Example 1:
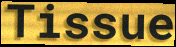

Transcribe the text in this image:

Tissue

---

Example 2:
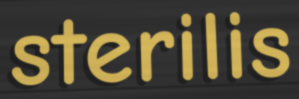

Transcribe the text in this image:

sterilis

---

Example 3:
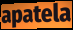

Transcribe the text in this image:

apatela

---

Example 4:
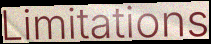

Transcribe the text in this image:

Limitations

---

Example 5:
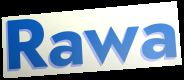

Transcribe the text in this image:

Rawa